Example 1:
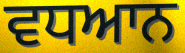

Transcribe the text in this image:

ਵਧਆਨ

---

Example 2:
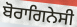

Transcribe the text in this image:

ਬੋਰਾਗਿਨੇਸੀ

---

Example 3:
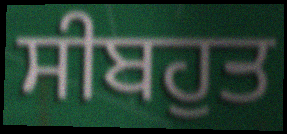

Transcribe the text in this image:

ਸੀਬਹੁਤ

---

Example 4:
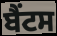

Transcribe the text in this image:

ਬੈਂਟਸ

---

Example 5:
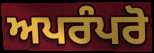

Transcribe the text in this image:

ਅਪਰੰਪਰੋ